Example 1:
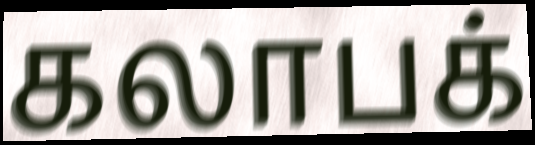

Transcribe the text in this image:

கலாபக்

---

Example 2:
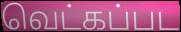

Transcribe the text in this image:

வெட்கப்பட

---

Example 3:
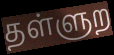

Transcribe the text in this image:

தள்ளுற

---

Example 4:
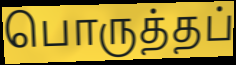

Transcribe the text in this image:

பொருத்தப்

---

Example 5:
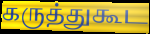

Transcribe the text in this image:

கருத்துகூட